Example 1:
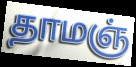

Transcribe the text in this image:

தாமஞ்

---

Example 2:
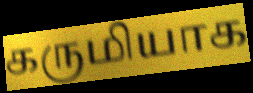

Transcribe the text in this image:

கருமியாக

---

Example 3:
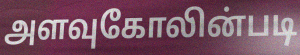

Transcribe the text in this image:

அளவுகோலின்படி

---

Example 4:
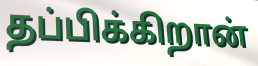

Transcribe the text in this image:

தப்பிக்கிறான்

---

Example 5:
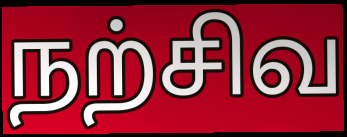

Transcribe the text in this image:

நற்சிவ